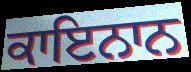
ਕਾਇਨਾਨ